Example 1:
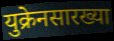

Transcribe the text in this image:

युक्रेनसारख्या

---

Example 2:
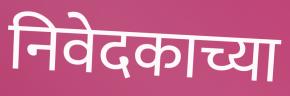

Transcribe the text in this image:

निवेदकाच्या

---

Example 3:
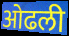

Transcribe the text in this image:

ओढली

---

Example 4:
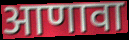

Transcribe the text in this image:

आणावा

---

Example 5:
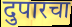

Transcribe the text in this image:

दुपारचा